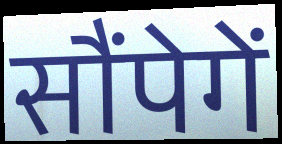
सौंपेगें